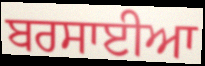
ਬਰਸਾਈਆ